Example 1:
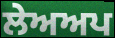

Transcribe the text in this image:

ਲੇਅਅਪ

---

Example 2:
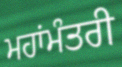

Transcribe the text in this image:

ਮਹਾਂਮੰਤਰੀ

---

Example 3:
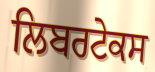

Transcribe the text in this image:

ਲਿਬਰਟੇਕਸ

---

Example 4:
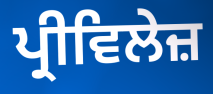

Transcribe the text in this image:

ਪ੍ਰੀਵਿਲੇਜ਼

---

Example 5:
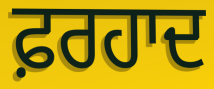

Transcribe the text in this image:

ਫ਼ਰਹਾਦ